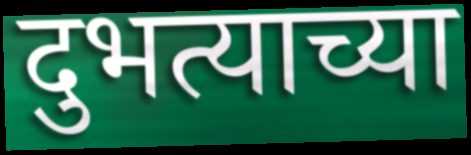
दुभत्याच्या